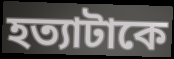
হত্যাটাকে